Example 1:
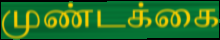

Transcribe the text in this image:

முண்டக்கை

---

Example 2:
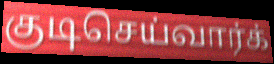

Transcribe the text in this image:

குடிசெய்வார்க்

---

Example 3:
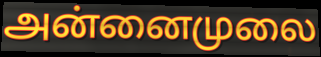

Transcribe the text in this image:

அன்னைமுலை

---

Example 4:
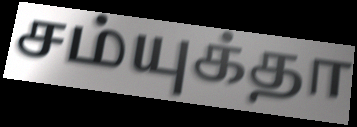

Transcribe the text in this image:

சம்யுக்தா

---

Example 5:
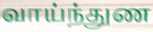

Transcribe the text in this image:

வாய்ந்துண